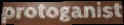
protoganist